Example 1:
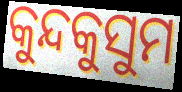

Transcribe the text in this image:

କୁନ୍ଦକୁସୁମ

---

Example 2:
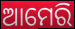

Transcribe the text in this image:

ଆମେରି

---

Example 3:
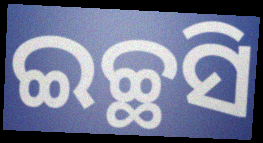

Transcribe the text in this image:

ଇଚ୍ଛସି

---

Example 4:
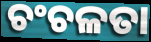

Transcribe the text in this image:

ଚଂଚଳତା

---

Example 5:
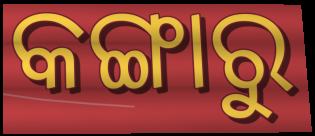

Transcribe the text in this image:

କଙ୍ଗାରୁ